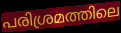
പരിശ്രമത്തിലെ